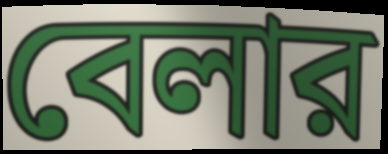
বেলার